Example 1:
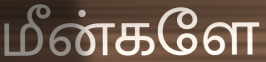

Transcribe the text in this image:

மீன்களே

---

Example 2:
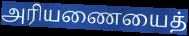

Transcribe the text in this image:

அரியணையைத்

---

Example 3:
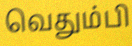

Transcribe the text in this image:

வெதும்பி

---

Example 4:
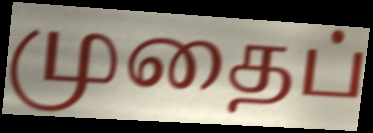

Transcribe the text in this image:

முதைப்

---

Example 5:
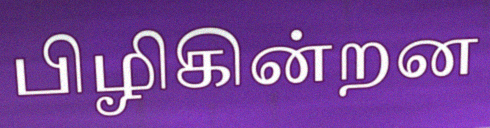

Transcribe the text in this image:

பிழிகின்றன